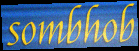
sombhob